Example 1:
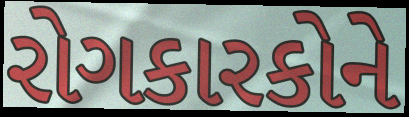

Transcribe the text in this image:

રોગકારકોને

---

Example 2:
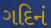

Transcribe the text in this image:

ગદિનં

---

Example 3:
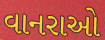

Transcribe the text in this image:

વાનરાઓ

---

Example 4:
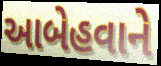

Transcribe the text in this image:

આબેહવાને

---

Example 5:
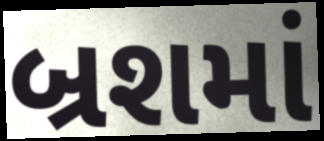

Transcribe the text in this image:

બ્રશમાં